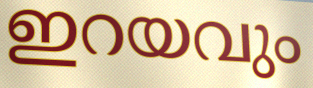
ഇറയവും